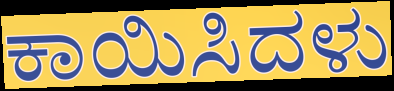
ಕಾಯಿಸಿದಳು